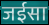
जईसा